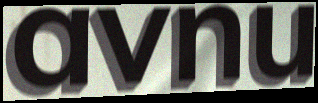
avnu